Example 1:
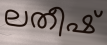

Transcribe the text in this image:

ലതീഷ്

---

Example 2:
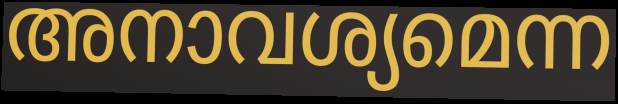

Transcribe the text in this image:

അനാവശ്യമെന്ന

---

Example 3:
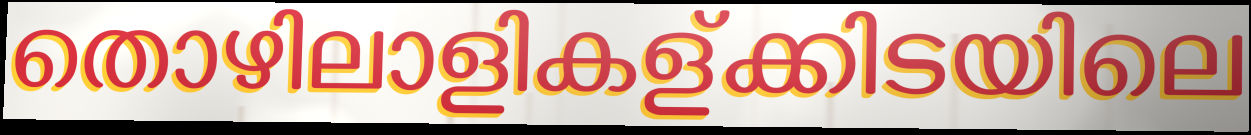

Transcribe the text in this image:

തൊഴിലാളികള്ക്കിടയിലെ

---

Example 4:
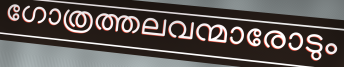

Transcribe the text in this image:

ഗോത്രത്തലവന്മാരോടും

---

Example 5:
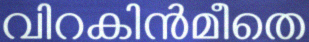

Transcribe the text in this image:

വിറകിൻമീതെ